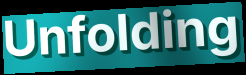
Unfolding